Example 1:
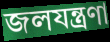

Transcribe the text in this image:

জলযন্ত্রণা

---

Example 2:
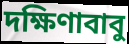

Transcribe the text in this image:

দক্ষিণাবাবু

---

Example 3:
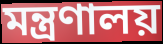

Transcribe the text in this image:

মন্ত্রণালয়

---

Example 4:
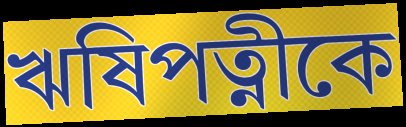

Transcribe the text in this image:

ঋষিপত্নীকে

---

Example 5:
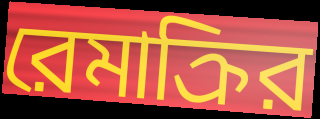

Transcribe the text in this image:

রেমাক্রির